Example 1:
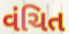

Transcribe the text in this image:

વંચિત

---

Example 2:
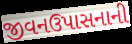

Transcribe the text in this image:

જીવનઉપાસનાની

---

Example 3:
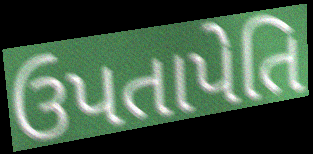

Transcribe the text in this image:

ઉપતાપેતિ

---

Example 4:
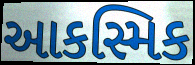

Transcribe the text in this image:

આકસ્મિક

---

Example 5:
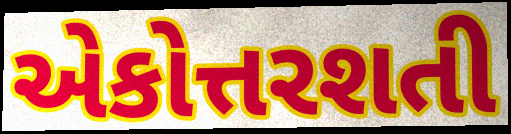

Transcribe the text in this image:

એકોત્તરશતી